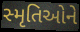
સ્મૃતિઓને